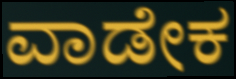
ವಾಡೇಕ